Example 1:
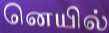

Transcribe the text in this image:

னெயில்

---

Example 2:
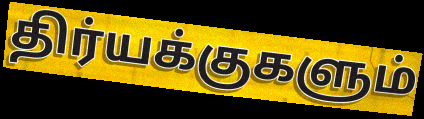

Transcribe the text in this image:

திர்யக்குகளும்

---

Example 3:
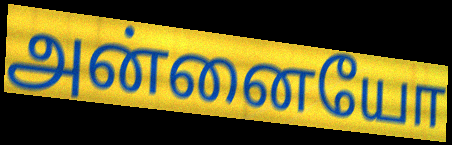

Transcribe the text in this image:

அன்னையோ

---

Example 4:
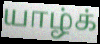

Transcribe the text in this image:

யாழ்க்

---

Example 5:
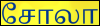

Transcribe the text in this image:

சோலா